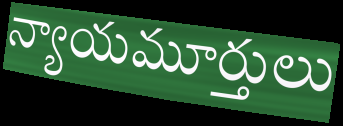
న్యాయమూర్తులు